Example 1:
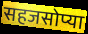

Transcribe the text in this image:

सहजसोप्या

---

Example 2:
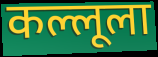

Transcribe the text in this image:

कल्लूला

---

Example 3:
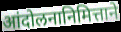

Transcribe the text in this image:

आंदोलनानिमित्ताने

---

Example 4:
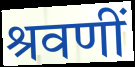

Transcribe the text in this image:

श्रवणीं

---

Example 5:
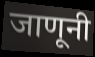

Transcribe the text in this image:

जाणूनी